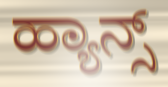
ಹ್ಯಾನ್ಸ್